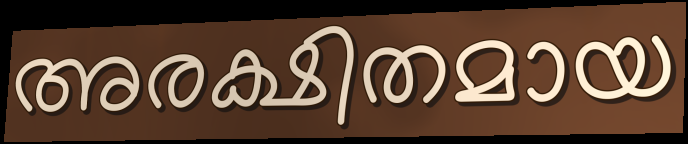
അരക്ഷിതമായ